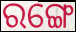
ରଙ୍ଗେ